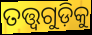
ତତ୍ତ୍ୱଗୁଡ଼ିକୁ